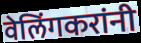
वेलिंगकरांनी